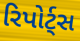
રિપોર્ટ્સ